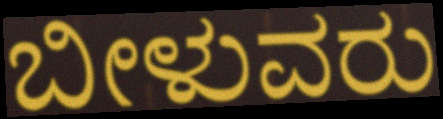
ಬೀಳುವರು